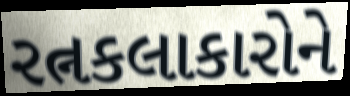
રત્નકલાકારોને